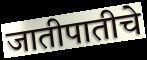
जातीपातीचे